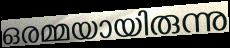
ഒരമ്മയായിരുന്നു